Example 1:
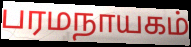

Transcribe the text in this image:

பரமநாயகம்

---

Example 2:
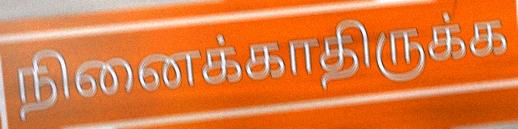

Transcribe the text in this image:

நினைக்காதிருக்க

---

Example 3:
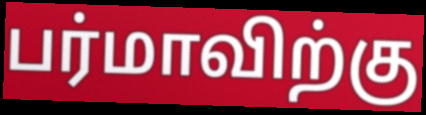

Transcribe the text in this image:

பர்மாவிற்கு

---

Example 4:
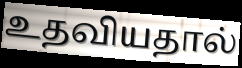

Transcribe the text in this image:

உதவியதால்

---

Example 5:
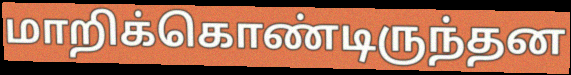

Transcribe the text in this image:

மாறிக்கொண்டிருந்தன